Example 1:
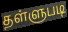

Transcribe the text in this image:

தள்ளுபடி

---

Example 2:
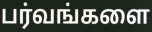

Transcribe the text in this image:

பர்வங்களை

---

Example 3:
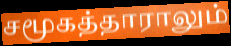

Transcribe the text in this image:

சமூகத்தாராலும்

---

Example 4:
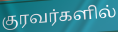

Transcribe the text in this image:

குரவர்களில்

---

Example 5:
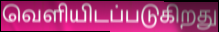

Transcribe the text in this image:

வெளியிடப்படுகிறது